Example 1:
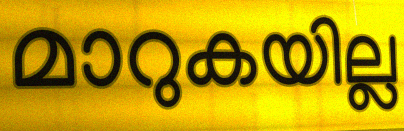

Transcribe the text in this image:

മാറുകയില്ല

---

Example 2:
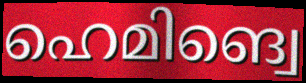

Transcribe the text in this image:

ഹെമിങ്വെ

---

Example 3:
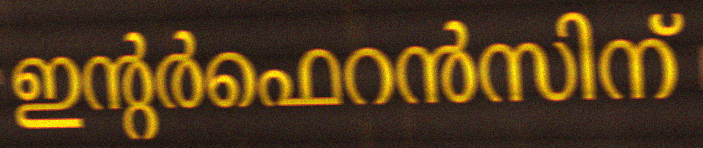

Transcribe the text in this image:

ഇന്റർഫെറൻസിന്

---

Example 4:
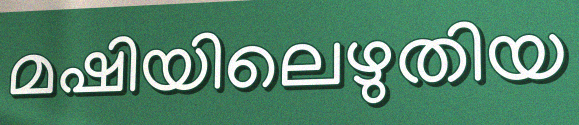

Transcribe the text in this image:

മഷിയിലെഴുതിയ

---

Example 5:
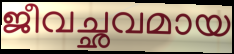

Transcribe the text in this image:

ജീവച്ഛവമായ